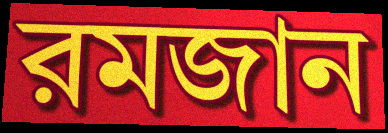
রমজান